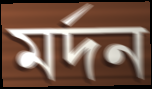
মৰ্দন